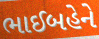
ભાઈબહેને